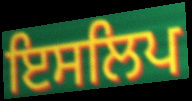
ਇਸਲਿਪ